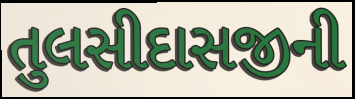
તુલસીદાસજીની